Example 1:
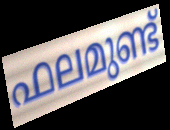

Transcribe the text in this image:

ഫലമുണ്ട്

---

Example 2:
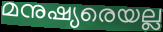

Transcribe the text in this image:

മനുഷ്യരെയല്ല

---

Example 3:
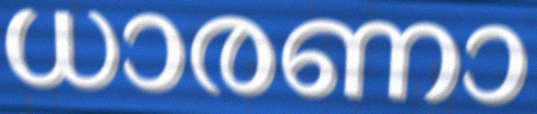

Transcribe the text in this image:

ധാരണാ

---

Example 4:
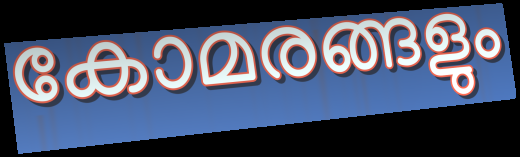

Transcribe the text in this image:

കോമരങ്ങളും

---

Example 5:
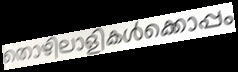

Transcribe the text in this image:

തൊഴിലാളികൾക്കൊപ്പം